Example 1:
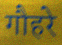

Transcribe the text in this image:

गौहरे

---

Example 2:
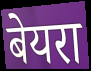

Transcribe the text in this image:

बेयरा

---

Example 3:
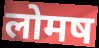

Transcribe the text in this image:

लोमष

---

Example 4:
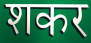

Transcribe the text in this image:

शकर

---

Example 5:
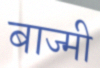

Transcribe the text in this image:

बाज्मी